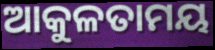
ଆକୁଳତାମୟ